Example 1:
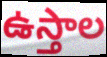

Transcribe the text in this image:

ఉస్తాల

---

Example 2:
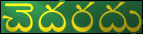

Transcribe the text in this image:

చెదరదు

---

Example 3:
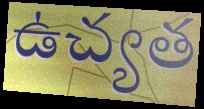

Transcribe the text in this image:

ఉచ్యత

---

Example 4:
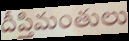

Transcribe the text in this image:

దీప్తిమంతులు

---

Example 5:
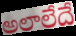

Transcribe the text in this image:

అలాలేదే